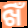
ଖିଁ